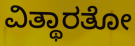
ವಿತ್ಥಾರತೋ